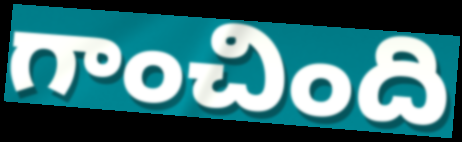
గాంచింది